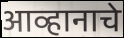
आव्हानाचे